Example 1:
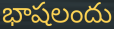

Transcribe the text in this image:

భాషలందు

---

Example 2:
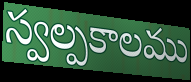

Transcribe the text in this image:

స్వల్పకాలము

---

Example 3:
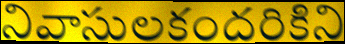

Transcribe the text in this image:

నివాసులకందరికిని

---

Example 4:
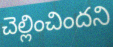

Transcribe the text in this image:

చెల్లించిందని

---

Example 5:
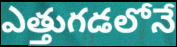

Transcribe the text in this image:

ఎత్తుగడలోనే